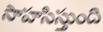
సాహసిస్తుంది